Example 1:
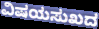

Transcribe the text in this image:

ವಿಷಯಸುಖದ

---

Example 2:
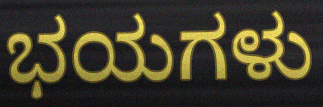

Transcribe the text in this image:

ಭಯಗಳು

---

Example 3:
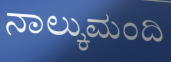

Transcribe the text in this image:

ನಾಲ್ಕುಮಂದಿ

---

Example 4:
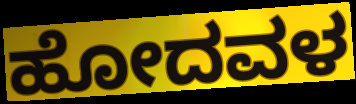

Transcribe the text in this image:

ಹೋದವಳ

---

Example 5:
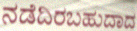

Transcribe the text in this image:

ನಡೆದಿರಬಹುದಾದ